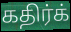
கதிர்க்